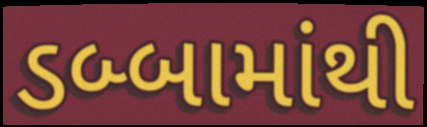
ડબ્બામાંથી